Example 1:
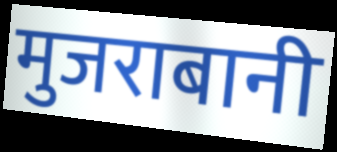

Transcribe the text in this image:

मुजराबानी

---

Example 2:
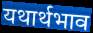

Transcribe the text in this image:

यथार्थभाव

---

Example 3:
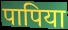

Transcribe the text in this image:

पापिया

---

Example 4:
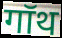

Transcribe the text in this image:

गॉथ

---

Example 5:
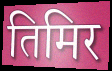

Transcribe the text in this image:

तिमिर